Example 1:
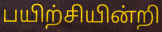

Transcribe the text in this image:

பயிற்சியின்றி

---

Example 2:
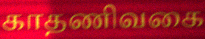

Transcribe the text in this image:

காதணிவகை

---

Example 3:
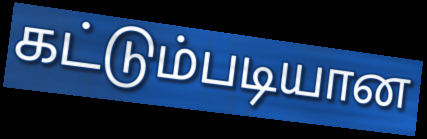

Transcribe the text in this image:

கட்டும்படியான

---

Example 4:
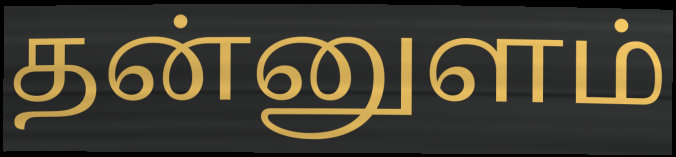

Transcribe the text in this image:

தன்னுளம்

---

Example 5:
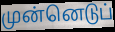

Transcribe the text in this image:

முன்னெடுப்